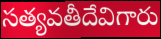
సత్యవతీదేవిగారు